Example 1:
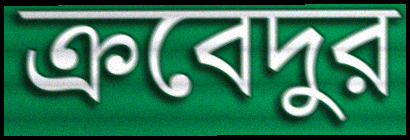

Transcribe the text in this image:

ক্রবেদুর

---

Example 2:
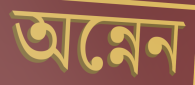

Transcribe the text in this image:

অন্নেন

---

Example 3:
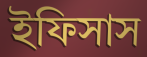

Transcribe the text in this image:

ইফিসাস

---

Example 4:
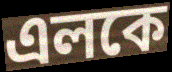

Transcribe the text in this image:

এলকে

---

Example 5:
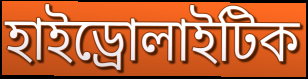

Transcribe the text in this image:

হাইড্রোলাইটিক